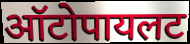
ऑटोपायलट